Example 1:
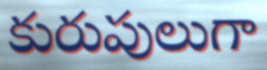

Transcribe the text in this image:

కురుపులుగా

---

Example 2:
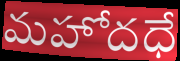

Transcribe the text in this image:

మహోదధే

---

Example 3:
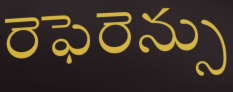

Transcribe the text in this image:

రెఫెరెన్సు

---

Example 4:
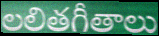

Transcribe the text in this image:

లలితగీతాలు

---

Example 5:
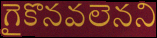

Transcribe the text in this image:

గైకొనవలెనని